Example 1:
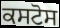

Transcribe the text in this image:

ਕਸਟੋਸ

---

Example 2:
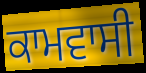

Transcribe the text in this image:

ਕਾਮਵਾਸੀ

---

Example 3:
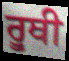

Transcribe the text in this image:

ਰੂਥੀ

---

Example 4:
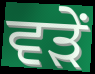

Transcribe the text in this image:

ਵੜੇਂ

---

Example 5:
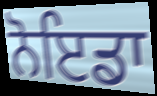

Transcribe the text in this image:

ਨੋਇਡਾ